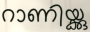
റാണിയ്ക്കു